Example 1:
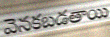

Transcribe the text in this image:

వెనకబడతాయి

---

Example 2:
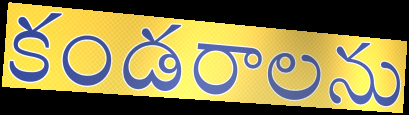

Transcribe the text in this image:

కండరాలను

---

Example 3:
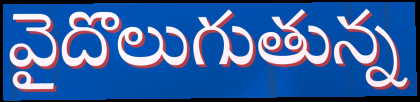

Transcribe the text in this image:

వైదొలుగుతున్న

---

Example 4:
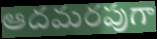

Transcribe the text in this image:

ఆదమరపుగా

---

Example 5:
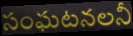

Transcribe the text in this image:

సంఘటనలనీ